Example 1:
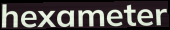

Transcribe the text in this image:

hexameter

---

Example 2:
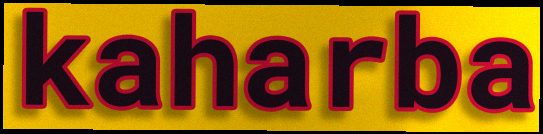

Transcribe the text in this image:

kaharba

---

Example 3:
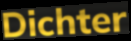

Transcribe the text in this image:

Dichter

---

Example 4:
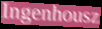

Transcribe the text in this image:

Ingenhousz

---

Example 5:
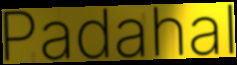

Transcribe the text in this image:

Padahal